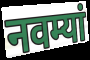
नवम्यां